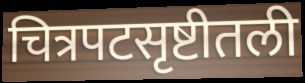
चित्रपटसृष्टीतली